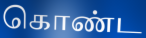
கொண்ட